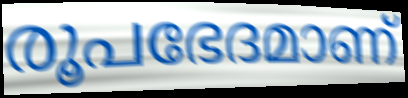
രൂപഭേദമാണ്